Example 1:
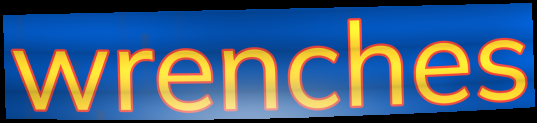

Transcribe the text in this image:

wrenches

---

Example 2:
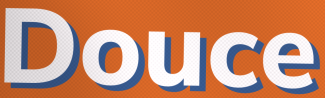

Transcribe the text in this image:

Douce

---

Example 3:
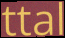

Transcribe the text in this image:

ttal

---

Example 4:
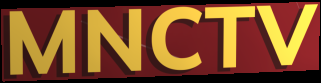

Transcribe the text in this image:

MNCTV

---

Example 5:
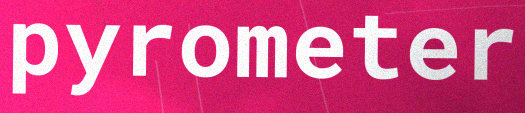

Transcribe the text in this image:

pyrometer